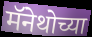
मॅनेथोच्या